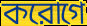
করোগে